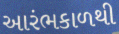
આરંભકાળથી